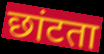
छांटता